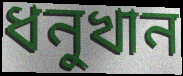
ধনুখান